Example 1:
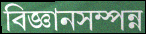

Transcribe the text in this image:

বিজ্ঞানসম্পন্ন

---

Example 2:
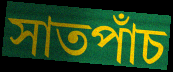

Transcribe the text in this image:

সাতপাঁচ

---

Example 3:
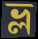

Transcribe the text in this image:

ভ্ল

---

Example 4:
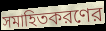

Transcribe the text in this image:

সমাহিতকরণের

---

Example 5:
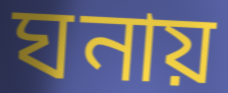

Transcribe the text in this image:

ঘনায়